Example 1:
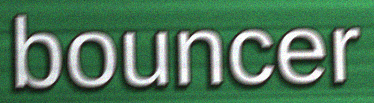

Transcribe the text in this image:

bouncer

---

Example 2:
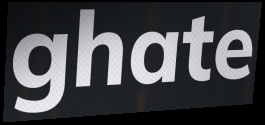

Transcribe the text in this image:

ghate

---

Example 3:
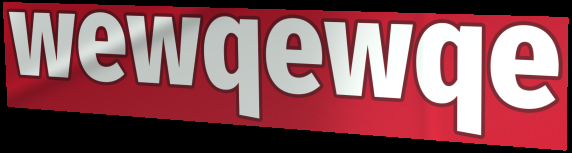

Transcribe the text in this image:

wewqewqe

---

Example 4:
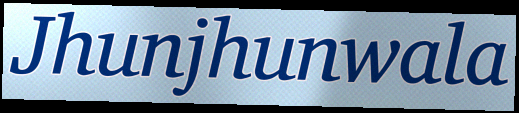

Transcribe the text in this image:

Jhunjhunwala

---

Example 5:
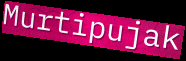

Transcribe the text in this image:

Murtipujak